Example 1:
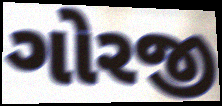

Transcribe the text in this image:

ગોરજી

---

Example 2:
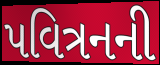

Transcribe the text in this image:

પવિત્રનની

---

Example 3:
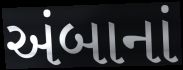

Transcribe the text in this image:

અંબાનાં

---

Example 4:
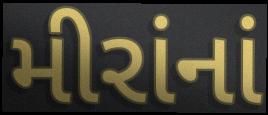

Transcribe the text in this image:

મીરાંનાં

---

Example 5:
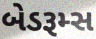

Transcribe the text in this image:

બેડરૂમ્સ